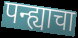
पन्ह्याचा